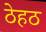
ठेहठ